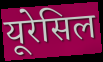
यूरेसिल